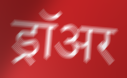
ड्रॉअर